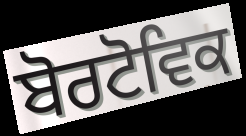
ਬੋਰਟੋਵਿਕ